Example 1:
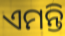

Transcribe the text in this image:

ଏମନ୍ତି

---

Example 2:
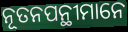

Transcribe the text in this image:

ନୂତନପନ୍ଥୀମାନେ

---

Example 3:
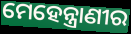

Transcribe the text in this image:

ମେହେନ୍ତ୍ରାଣୀର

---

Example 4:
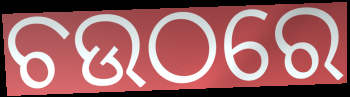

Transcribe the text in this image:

ଚଉଠରେ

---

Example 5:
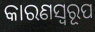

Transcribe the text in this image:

କାରଣସ୍ୱରୂପ